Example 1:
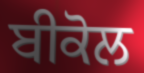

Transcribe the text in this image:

ਬੀਕੋਲ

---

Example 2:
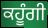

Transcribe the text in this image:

ਕਹੂੰਗੀ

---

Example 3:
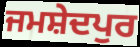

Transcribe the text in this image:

ਜਮਸ਼ੇਦਪੁਰ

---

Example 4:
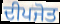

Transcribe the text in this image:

ਦੀਪਜੋਤ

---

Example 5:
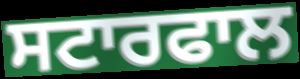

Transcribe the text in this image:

ਸਟਾਰਫਾਲ